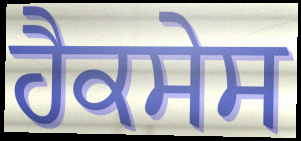
ਹੈਕਸੇਸ